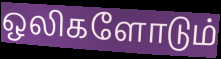
ஒலிகளோடும்